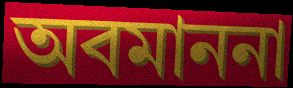
অবমাননা